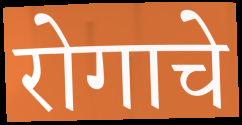
रोगाचे